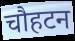
चौहटन